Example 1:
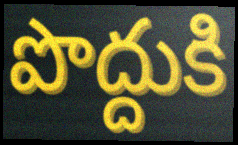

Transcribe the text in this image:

పొద్దుకి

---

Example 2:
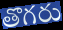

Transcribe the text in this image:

తొగరు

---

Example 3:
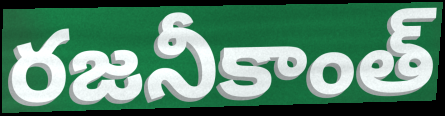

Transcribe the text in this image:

రజనీకాంత్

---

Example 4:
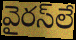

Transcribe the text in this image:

వైరస్‌లే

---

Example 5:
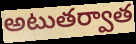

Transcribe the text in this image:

అటుతర్వాత